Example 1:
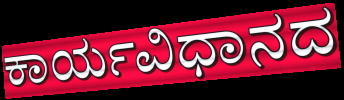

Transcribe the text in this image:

ಕಾರ್ಯವಿಧಾನದ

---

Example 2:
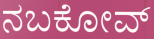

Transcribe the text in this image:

ನಬಕೋವ್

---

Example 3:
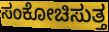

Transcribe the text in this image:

ಸಂಕೋಚಿಸುತ್ತ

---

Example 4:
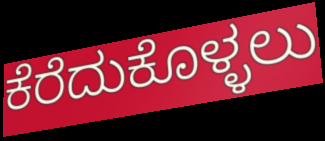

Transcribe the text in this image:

ಕೆರೆದುಕೊಳ್ಳಲು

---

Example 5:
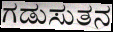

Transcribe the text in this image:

ಗಡುಸುತನ